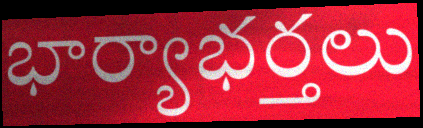
భార్యాభర్తలు